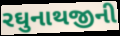
રઘુનાથજીની